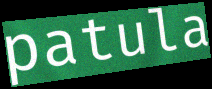
patula